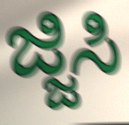
ಜ್ಜಿಸಿ